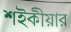
শইকীয়ার